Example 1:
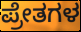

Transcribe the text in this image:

ಪ್ರೇತಗಳ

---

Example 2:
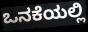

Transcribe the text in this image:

ಒನಕೆಯಲ್ಲಿ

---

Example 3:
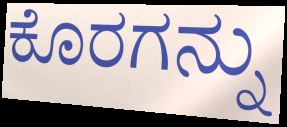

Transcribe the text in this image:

ಕೊರಗನ್ನು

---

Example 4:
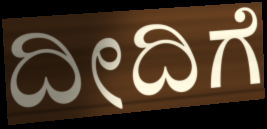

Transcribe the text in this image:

ದೀದಿಗೆ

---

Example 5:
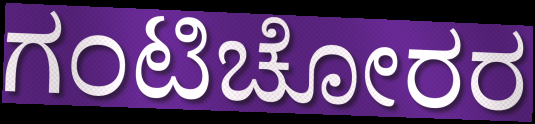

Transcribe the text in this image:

ಗಂಟಿಚೋರರ